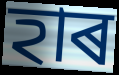
হাৰ